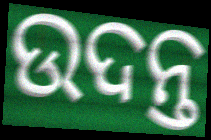
ଉଦନ୍ତ